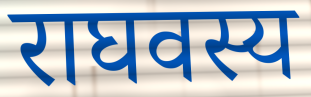
राघवस्य